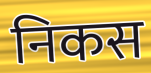
निकस